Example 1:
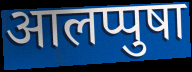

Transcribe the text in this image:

आलप्पुषा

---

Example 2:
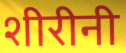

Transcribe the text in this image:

शीरीनी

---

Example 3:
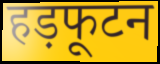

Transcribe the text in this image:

हड़फूटन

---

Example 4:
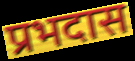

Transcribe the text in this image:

प्रभदास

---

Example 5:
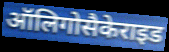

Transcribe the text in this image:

ऑलिगोसैकेराइड